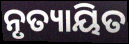
ନୃତ୍ୟାୟିତ